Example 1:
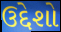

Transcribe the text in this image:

ઉદ્દેશો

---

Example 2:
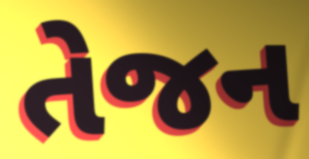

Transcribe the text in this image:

તેજન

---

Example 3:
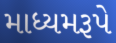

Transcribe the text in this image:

માધ્યમરૂપે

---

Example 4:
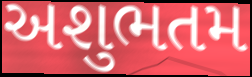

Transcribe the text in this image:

અશુભતમ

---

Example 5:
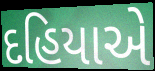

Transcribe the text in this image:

દહિયાએ